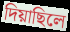
দিয়াছিলে